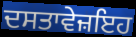
ਦਸਤਾਵੇਜ਼ਇਹ